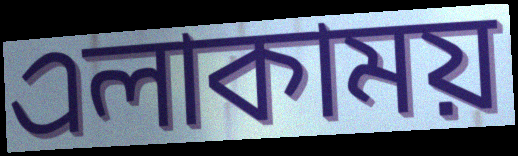
এলাকাময়